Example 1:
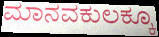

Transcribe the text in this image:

ಮಾನವಕುಲಕ್ಕೂ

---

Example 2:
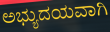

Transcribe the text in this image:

ಅಭ್ಯುದಯವಾಗಿ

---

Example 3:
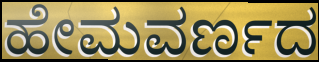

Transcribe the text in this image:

ಹೇಮವರ್ಣದ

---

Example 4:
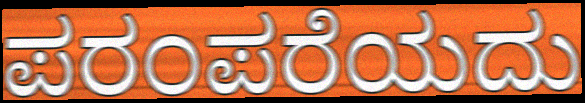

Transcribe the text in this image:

ಪರಂಪರೆಯದು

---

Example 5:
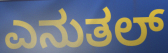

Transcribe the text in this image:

ಎನುತಲ್